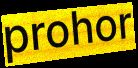
prohor